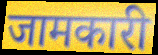
जामकारी